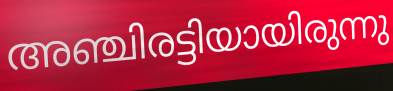
അഞ്ചിരട്ടിയായിരുന്നു